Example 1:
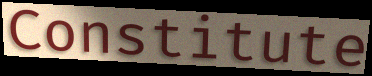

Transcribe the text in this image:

Constitute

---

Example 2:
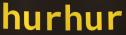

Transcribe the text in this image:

hurhur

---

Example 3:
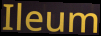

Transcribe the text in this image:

Ileum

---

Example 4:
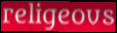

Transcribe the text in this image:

religeous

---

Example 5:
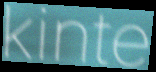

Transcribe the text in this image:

kinte